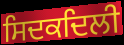
ਸਿਦਕਦਿਲੀ